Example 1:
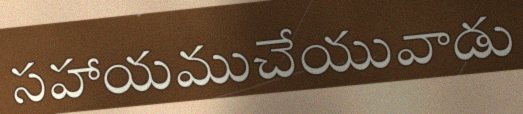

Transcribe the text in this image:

సహాయముచేయువాడు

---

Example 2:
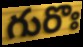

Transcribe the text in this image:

గురొః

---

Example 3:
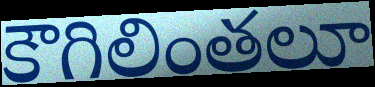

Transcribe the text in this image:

కౌగిలింతలూ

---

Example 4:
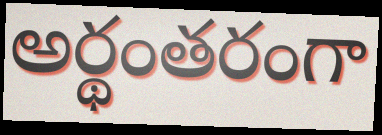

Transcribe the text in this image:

అర్థంతరంగా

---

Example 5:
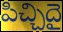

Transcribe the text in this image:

పిచ్చిదై